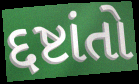
દ્દષ્ટાંતો